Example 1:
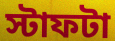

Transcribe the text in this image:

স্টাফটা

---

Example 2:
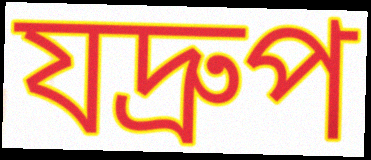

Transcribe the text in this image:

যদ্রুপ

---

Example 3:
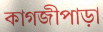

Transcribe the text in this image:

কাগজীপাড়া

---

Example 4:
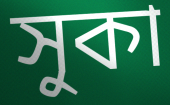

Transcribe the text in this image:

সুকা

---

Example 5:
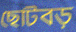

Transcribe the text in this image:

ছোটবড়